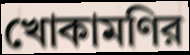
খোকামণির